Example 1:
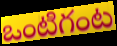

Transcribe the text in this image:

ఒంటిగంట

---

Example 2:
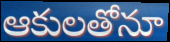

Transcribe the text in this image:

ఆకులతోనూ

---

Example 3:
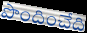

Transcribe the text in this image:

పొందించేది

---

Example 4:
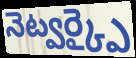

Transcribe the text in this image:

నెట్వర్క్పై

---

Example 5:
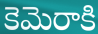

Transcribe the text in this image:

కెమెరాకి